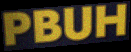
PBUH